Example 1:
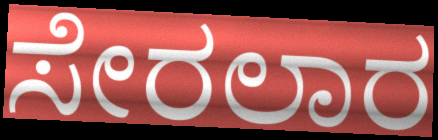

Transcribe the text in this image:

ಸೇರಲಾರ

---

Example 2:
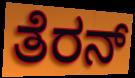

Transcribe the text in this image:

ತೆರನ್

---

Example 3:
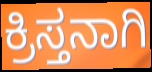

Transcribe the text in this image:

ಕ್ರಿಸ್ತನಾಗಿ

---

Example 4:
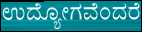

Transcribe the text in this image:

ಉದ್ಯೋಗವೆಂದರೆ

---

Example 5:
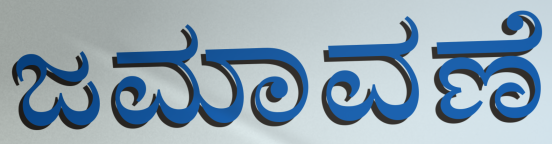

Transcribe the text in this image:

ಜಮಾವಣೆ